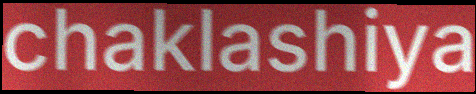
chaklashiya